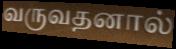
வருவதனால்